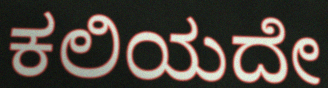
ಕಲಿಯದೇ